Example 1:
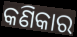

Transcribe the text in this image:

କଣିକାର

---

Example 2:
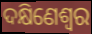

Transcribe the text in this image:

ଦକ୍ଷିଣେଶ୍ୱର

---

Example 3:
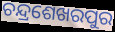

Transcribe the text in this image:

ଚନ୍ଦ୍ରଶେଖରପୁର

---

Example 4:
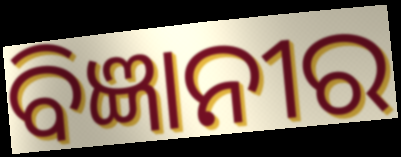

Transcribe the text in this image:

ବିଜ୍ଞାନୀର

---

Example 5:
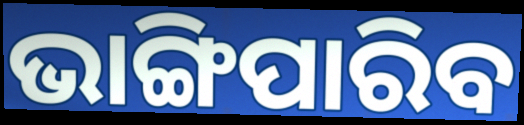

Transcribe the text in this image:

ଭାଙ୍ଗିପାରିବ